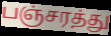
பஞ்சரத்து